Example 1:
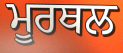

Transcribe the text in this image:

ਮੂਰਥਲ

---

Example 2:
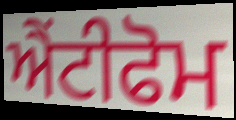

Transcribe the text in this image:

ਐਂਟੀਫੋਮ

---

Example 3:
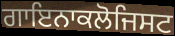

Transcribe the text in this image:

ਗਾਇਨਾਕਲੋਜਿਸਟ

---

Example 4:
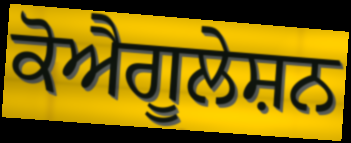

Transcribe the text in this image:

ਕੋਐਗੂਲੇਸ਼ਨ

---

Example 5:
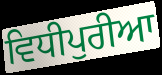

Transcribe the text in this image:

ਵਿਧੀਪੁਰੀਆ